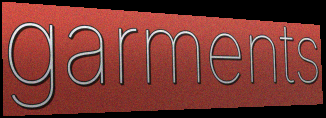
garments